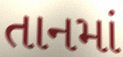
તાનમાં